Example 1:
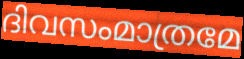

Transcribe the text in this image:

ദിവസംമാത്രമേ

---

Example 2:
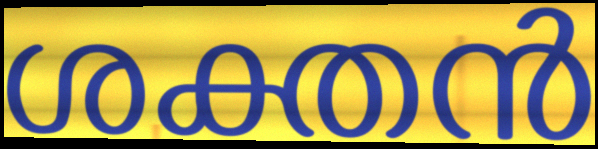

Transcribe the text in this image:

ശക്തൻ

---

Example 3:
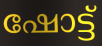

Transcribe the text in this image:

ഷോട്ട്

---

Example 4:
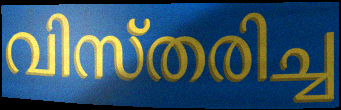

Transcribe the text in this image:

വിസ്തരിച്ച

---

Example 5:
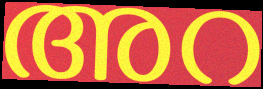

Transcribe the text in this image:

അറ